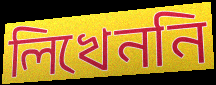
লিখেননি